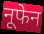
नूफेन